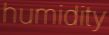
humidity